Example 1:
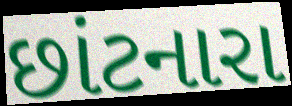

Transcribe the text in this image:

છાંટનારા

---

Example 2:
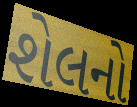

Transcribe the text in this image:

શેલનો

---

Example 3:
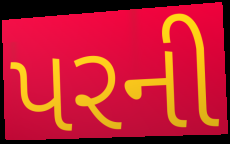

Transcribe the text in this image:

પરની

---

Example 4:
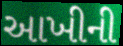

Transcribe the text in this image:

આખીની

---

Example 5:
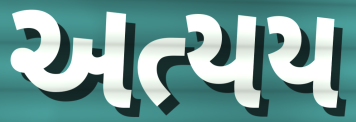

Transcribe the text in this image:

અત્યય